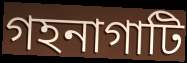
গহনাগাটি